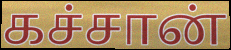
கச்சான்